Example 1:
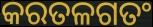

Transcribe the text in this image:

କରତଳଗତଂ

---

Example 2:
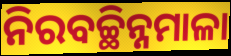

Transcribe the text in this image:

ନିରବଚ୍ଛିନ୍ନମାଳା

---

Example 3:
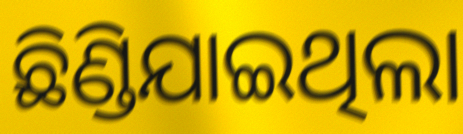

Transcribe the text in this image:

ଛିଣ୍ଡିଯାଇଥିଲା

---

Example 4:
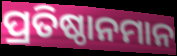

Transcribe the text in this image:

ପ୍ରତିଷ୍ଠାନମାନ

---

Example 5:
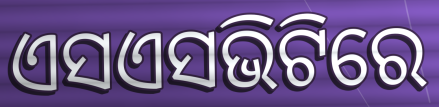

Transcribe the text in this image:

ଏସଏସଭିଟିରେ